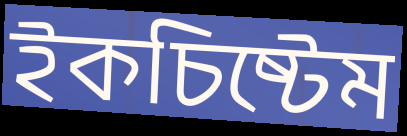
ইকচিষ্টেম